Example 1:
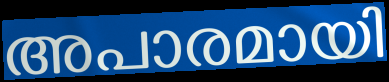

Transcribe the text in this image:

അപാരമായി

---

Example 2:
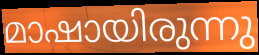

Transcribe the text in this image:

മാഷായിരുന്നു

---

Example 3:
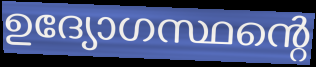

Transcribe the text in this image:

ഉദ്യോഗസ്ഥന്റെ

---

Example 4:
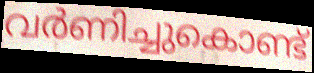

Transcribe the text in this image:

വർണിച്ചുകൊണ്ട്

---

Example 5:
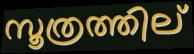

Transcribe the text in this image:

സൂത്രത്തില്